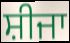
ਸ਼ੀਜਾ